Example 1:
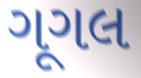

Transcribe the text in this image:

ગૂગલ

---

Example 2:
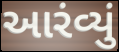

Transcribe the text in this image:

આરંવ્યું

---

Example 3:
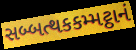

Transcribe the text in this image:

સબ્બત્થકકમ્મટ્ઠાનં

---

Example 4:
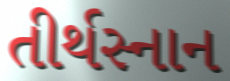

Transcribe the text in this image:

તીર્થસ્નાન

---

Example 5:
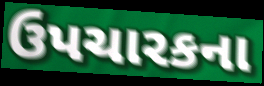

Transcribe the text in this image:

ઉપચારકના